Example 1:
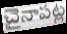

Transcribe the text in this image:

చైనాపట్ల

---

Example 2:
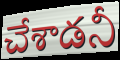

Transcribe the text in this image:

చేశాడనీ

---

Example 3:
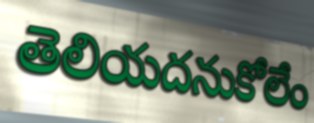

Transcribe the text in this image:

తెలియదనుకోలేం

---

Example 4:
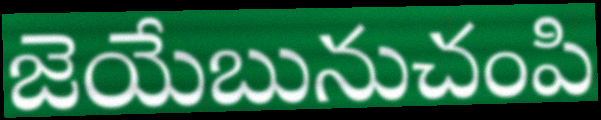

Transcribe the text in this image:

జెయేబునుచంపి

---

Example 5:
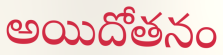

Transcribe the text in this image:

అయిదోతనం